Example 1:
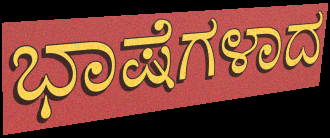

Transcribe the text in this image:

ಭಾಷೆಗಳಾದ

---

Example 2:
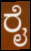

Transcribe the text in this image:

ರೈ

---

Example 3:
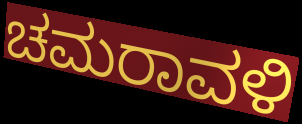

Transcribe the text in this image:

ಚಮರಾವಳಿ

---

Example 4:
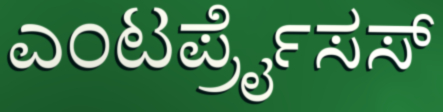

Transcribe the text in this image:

ಎಂಟರ್ಪ್ರೈಸಸ್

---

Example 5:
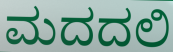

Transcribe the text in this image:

ಮದದಲಿ